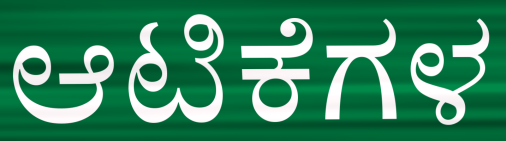
ಆಟಿಕೆಗಳ